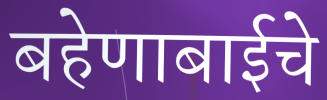
बहेणाबाईचे